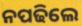
ନପଢିଲେ